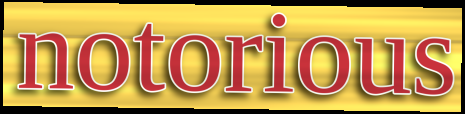
notorious